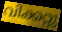
വിക്കറ്റു